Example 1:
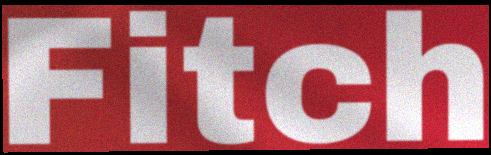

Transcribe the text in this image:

Fitch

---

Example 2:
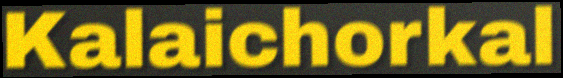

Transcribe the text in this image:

Kalaichorkal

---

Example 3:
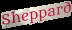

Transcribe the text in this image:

Sheppard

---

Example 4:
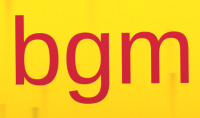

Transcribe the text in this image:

bgm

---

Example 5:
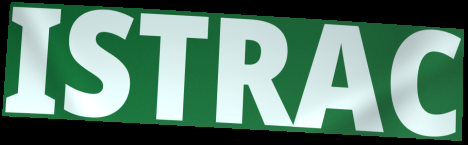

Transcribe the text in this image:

ISTRAC